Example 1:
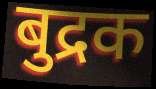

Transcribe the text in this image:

बुद्रक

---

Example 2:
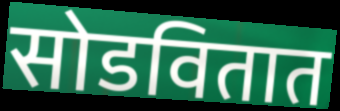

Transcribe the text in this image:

सोडवितात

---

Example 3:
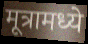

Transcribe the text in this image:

मूत्रामध्ये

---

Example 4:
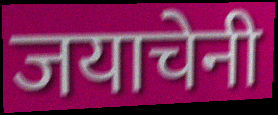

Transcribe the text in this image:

जयाचेनी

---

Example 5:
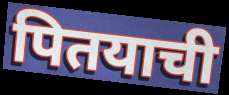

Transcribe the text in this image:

पितयाची